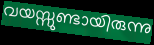
വയസ്സുണ്ടായിരുന്നു